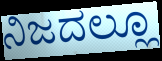
ನಿಜದಲ್ಲೂ